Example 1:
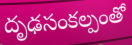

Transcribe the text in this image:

దృఢసంకల్పంతో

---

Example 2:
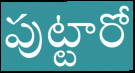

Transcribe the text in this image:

పుట్టారో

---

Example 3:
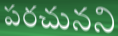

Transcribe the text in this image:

పరచునని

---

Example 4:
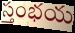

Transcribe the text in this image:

స్తంభయ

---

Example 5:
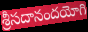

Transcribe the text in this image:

శ్రీసదానందయోగి